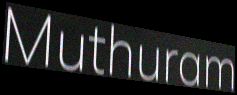
Muthuram